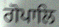
ਗੋਪਾਲਿ